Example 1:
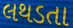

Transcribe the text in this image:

લથડતા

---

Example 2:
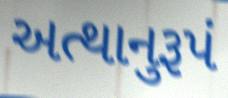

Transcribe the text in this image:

અત્થાનુરૂપં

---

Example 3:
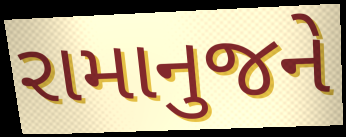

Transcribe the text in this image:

રામાનુજને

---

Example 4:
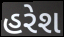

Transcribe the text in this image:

હરેશ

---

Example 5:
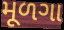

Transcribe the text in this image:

મૂળગા